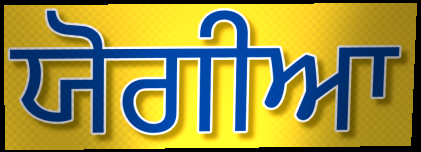
ਯੋਗੀਆ